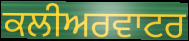
ਕਲੀਅਰਵਾਟਰ